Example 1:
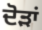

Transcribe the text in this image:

ਦੋੜਾਂ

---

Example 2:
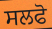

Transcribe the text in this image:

ਸਲਫੋ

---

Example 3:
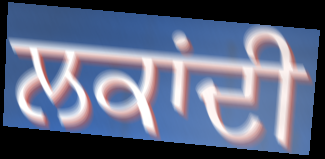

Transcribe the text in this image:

ਲਕਾਂਦੀ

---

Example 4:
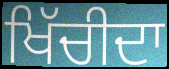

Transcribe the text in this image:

ਖਿੱਚੀਦਾ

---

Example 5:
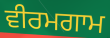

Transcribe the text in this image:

ਵੀਰਮਗਾਮ